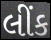
લીંક